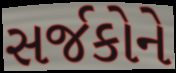
સર્જકોને